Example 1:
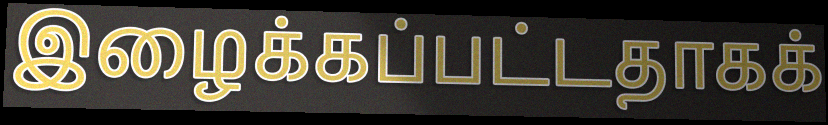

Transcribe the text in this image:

இழைக்கப்பட்டதாகக்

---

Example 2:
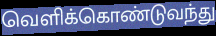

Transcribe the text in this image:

வெளிக்கொண்டுவந்து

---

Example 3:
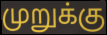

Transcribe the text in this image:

முறுக்கு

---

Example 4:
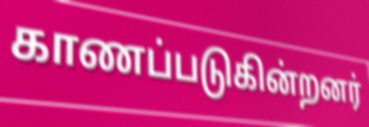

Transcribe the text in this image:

காணப்படுகின்றனர்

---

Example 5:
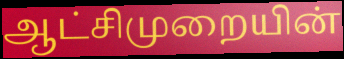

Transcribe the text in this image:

ஆட்சிமுறையின்